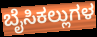
ಬೈಸಿಕಲ್ಲುಗಳ